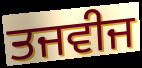
ਤਜਵੀਜ